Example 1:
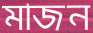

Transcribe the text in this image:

মাজন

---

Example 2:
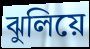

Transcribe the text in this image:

ঝুলিয়ে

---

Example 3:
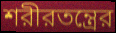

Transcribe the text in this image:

শরীরতন্ত্রের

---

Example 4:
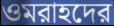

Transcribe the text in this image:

ওমরাহদের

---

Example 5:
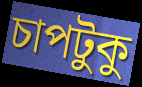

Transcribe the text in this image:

চাপটুকু